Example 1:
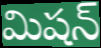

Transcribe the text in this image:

మిషన్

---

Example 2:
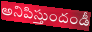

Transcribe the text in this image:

అనిపిస్తుందండీ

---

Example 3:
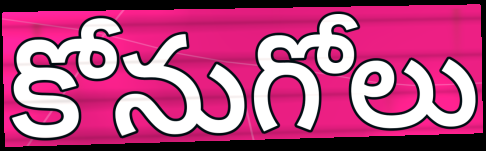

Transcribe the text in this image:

కోనుగోలు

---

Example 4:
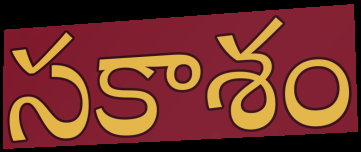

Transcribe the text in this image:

సకాశం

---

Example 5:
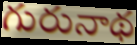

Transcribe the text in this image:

గురునాథ